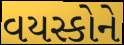
વયસ્કોને